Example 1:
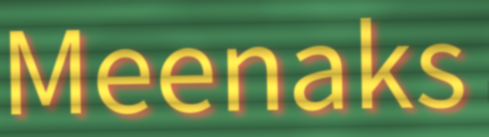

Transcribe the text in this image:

Meenaks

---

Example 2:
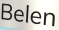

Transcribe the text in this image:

Belen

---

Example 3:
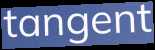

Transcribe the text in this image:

tangent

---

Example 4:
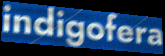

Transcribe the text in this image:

indigofera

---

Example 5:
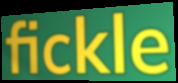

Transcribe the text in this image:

fickle